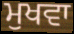
ਮੁਖਵਾ